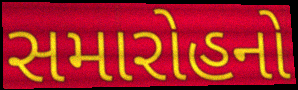
સમારોહનો